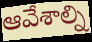
ఆవేశాల్ని